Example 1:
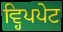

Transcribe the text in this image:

ਵ੍ਹਿਪਪੇਟ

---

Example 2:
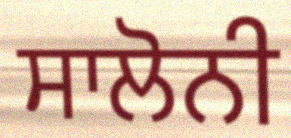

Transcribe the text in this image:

ਸਾਲੋਨੀ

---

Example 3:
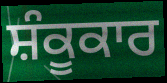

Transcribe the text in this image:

ਸ਼ੰਕੂਕਾਰ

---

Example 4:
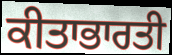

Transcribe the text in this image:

ਕੀਤਾਭਾਰਤੀ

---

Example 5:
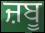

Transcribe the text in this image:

ਜ਼ਬੂ